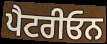
ਪੈਟਰੀਓਨ